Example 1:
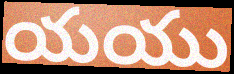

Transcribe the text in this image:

యయు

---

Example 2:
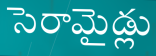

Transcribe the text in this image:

సెరామైడ్లు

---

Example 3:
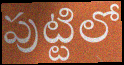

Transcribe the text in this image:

పుట్టిలో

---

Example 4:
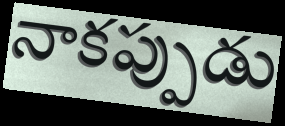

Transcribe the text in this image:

నాకప్పుడు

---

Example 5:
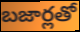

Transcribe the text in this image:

బజార్లతో